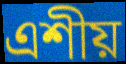
এশীয়